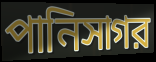
পানিসাগর